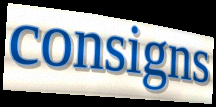
consigns